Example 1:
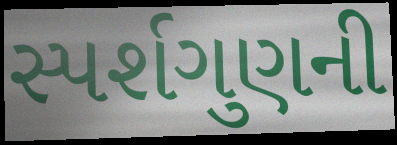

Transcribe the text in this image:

સ્પર્શગુણની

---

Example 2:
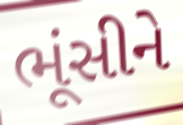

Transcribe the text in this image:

ભૂંસીને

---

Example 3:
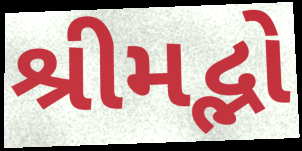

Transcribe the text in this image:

શ્રીમદ્ભો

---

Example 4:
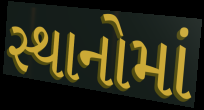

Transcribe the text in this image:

સ્થાનોમાં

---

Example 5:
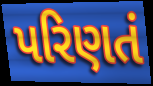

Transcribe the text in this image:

પરિણતં